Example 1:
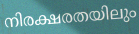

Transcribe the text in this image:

നിരക്ഷരതയിലും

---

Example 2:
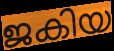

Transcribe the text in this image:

ജകിയ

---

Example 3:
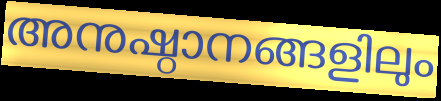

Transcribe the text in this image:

അനുഷ്ഠാനങ്ങളിലും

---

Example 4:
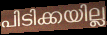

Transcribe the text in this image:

പിടിക്കയില്ല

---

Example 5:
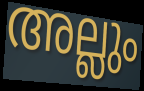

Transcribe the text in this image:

അല്ലും